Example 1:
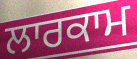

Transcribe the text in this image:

ਲਾਰਕਾਮ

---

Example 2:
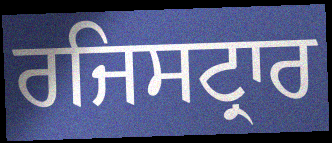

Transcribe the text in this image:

ਰਜਿਸਟ੍ਰਾਰ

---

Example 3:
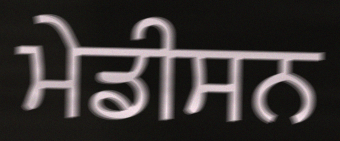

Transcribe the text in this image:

ਮੇਡੀਸਨ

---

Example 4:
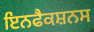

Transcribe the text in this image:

ਇਨਫੈਕਸ਼ਨਸ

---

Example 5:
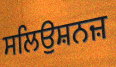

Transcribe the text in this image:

ਸਲਿਉਸ਼ਨਜ਼